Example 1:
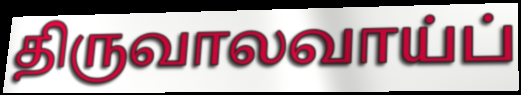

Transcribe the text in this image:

திருவாலவாய்ப்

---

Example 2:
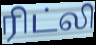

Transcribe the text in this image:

ரிட்லி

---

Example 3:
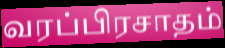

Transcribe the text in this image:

வரப்பிரசாதம்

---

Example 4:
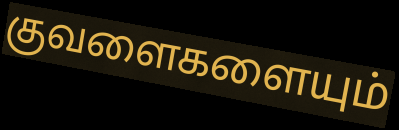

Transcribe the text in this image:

குவளைகளையும்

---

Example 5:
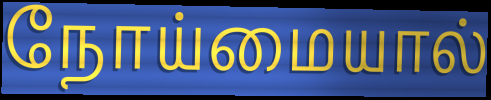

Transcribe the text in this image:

நோய்மையால்